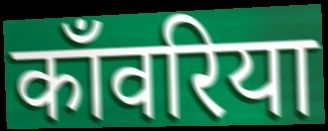
काँवरिया